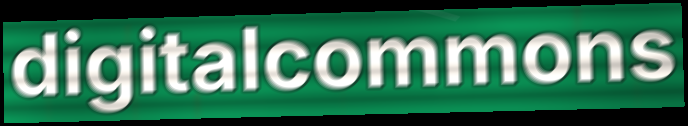
digitalcommons